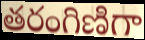
తరంగిణిగా